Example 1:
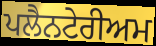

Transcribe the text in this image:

ਪਲੈਨਟੇਰੀਅਮ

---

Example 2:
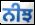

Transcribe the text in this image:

ਨੀਝ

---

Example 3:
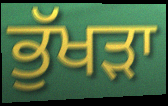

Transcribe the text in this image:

ਭੁੱਖੜਾ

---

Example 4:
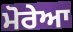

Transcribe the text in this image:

ਮੋਰੇਆ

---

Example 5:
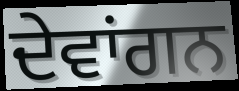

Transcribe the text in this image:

ਦੇਵਾਂਗਨ